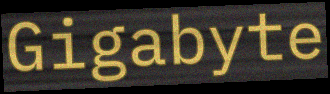
Gigabyte